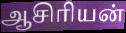
ஆசிரியன்